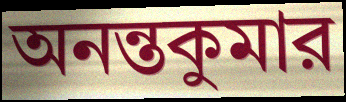
অনন্তকুমার